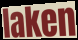
laken